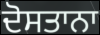
ਦੋਸਤਾਨਾ